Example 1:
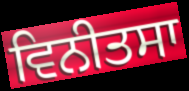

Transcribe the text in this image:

ਵਿਨੀਤਸਾ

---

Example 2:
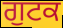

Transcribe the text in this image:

ਗੁਟਕ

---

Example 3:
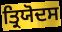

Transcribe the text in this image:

ਤ੍ਰਿਯੋਦਸ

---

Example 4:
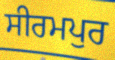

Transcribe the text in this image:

ਸੀਰਮਪੁਰ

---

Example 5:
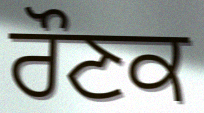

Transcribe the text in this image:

ਰੌਣਕ